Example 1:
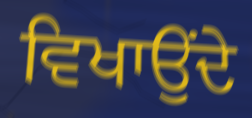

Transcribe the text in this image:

ਵਿਖਾਉੁਂਦੇ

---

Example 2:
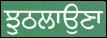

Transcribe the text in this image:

ਝੁਠਲਾਉਣਾ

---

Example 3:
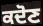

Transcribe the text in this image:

ਕਦੋਣ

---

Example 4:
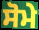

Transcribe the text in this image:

ਸੋਮੇ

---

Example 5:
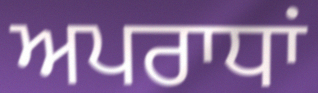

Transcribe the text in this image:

ਅਪਰਾਧਾਂ